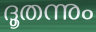
ദൂതന്നും